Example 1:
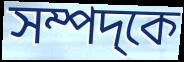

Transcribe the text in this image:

সম্পদ্‌কে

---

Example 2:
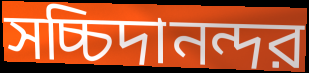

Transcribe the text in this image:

সচ্চিদানন্দর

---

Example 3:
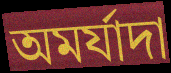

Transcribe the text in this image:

অমর্যাদা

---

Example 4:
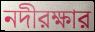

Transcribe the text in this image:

নদীরক্ষার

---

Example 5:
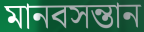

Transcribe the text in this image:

মানবসন্তান